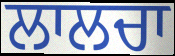
ਲਾਲਚਾ